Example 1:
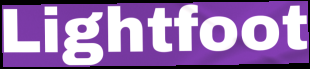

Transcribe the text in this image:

Lightfoot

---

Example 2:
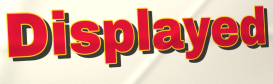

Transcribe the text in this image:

Displayed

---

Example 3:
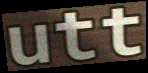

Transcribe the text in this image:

utt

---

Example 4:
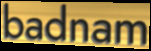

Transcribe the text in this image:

badnam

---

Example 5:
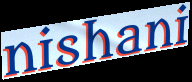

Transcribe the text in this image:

nishani